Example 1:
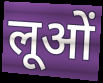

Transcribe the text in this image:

लूओं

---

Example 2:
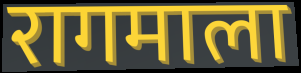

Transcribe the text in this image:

रागमाला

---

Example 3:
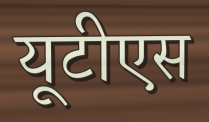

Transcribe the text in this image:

यूटीएस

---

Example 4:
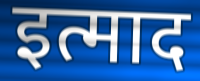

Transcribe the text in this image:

इत्माद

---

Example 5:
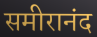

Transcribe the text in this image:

समीरानंद